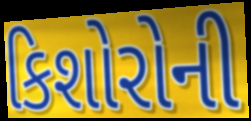
કિશોરોની